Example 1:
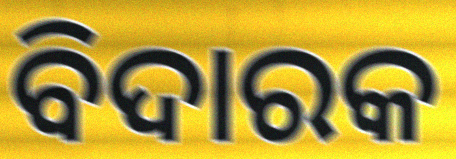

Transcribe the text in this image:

ବିଦାରକ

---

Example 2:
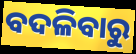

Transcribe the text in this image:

ବଦଳିବାରୁ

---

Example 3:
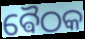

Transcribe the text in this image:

ଵୈଠକ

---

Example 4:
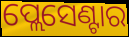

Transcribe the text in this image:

ପ୍ଲେସେଣ୍ଟାର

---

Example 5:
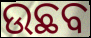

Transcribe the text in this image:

ଉଛବ